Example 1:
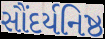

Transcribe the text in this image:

સૌંદર્યનિષ્ઠ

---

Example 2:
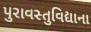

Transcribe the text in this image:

પુરાવસ્તુવિદ્યાના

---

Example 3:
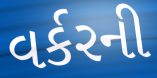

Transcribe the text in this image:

વર્કરની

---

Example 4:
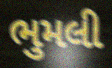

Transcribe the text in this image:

ભુમલી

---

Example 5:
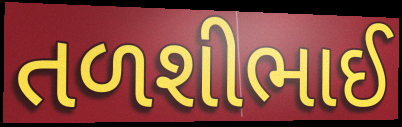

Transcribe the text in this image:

તળશીભાઈ